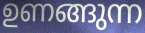
ഉണങ്ങുന്ന